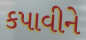
કપાવીને